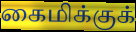
கைமிக்குக்